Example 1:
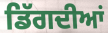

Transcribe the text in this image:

ਡਿੱਗਦੀਆਂ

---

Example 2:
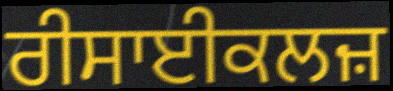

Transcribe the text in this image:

ਰੀਸਾਈਕਲਜ਼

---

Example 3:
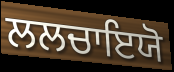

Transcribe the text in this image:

ਲਲਚਾਇਯੋ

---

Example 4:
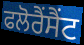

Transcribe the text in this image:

ਫਲੋਰੈਂਸੈਂਟ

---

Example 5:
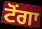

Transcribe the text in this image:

ਟੋਂਗਾ